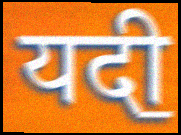
यदी॒